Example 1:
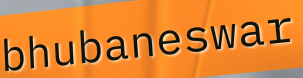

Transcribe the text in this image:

bhubaneswar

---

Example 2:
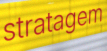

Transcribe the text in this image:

stratagem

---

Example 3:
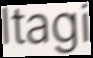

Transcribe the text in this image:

Itagi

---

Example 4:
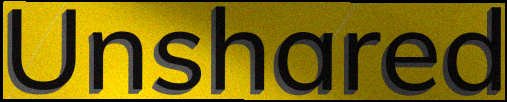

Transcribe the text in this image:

Unshared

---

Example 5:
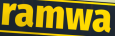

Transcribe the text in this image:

ramwa